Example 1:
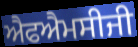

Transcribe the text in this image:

ਐਫਐਮਸੀਜੀ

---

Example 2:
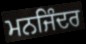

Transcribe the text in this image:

ਮਨਜਿੰਦਰ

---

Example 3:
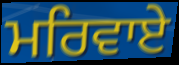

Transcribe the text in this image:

ਮਰਿਵਾਏ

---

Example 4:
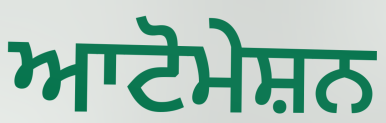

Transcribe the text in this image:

ਆਟੋਮੇਸ਼ਨ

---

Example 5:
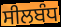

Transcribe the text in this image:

ਸੀਲਬੰਧ